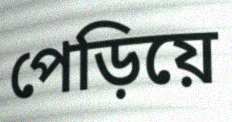
পেড়িয়ে